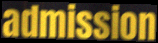
admission